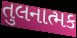
તુલનાત્મક